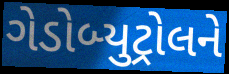
ગેડોબ્યુટ્રોલને